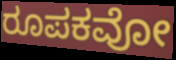
ರೂಪಕವೋ